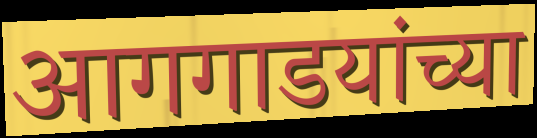
आगगाडयांच्या